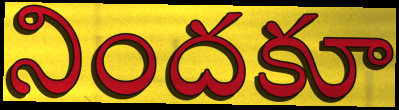
నిందకూ